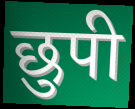
छुपी